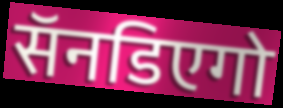
सॅनडिएगो